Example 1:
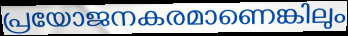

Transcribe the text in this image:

പ്രയോജനകരമാണെങ്കിലും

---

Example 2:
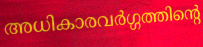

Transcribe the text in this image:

അധികാരവർഗ്ഗത്തിന്റെ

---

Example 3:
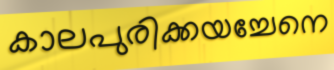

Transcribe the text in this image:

കാലപുരിക്കയച്ചേനെ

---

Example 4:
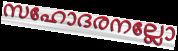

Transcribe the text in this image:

സഹോദരനല്ലോ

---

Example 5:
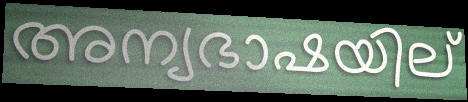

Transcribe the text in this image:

അന്യഭാഷയില്